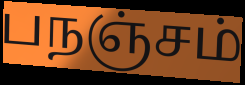
பநஞ்சம்